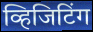
व्हिजिटिंग